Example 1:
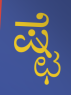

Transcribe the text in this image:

ಷ್ಟೆ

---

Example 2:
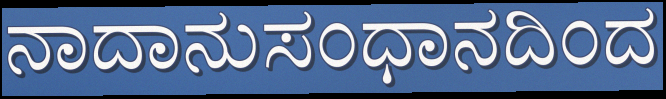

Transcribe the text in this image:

ನಾದಾನುಸಂಧಾನದಿಂದ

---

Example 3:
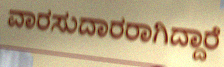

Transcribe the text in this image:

ವಾರಸುದಾರರಾಗಿದ್ದಾರೆ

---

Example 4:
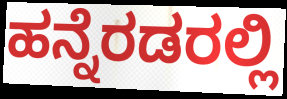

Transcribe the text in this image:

ಹನ್ನೆರಡರಲ್ಲಿ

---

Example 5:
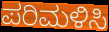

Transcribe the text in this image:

ಪರಿಮಳಿಸಿ